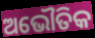
ଅଭୌତିକ